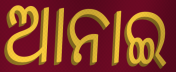
ଆନାଇ